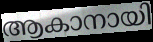
ആകാനായി